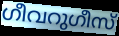
ഗീവറുഗീസ്